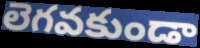
లెగవకుండా